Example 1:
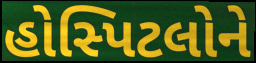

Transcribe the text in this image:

હોસ્પિટલોને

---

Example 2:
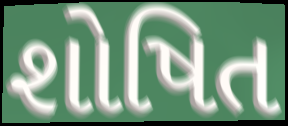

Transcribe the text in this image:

શોષિત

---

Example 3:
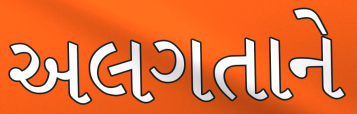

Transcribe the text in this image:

અલગતાને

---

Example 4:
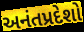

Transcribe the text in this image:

અનંતપ્રદેશો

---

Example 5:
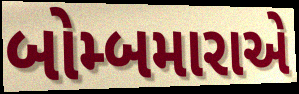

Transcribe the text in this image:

બોમ્બમારાએ